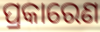
ପ୍ରକାରେଣ